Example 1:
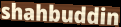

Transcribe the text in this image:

shahbuddin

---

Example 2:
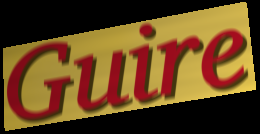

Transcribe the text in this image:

Guire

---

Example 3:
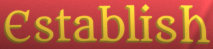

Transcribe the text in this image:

Establish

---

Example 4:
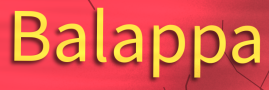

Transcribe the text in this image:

Balappa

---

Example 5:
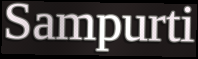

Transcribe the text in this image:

Sampurti